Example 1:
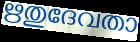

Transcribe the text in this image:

ഋതുദേവതാ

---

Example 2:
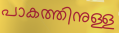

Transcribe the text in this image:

പാകത്തിനുള്ള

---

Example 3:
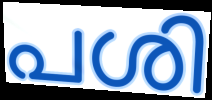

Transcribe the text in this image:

പശി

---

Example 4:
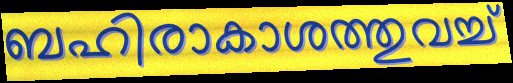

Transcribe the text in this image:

ബഹിരാകാശത്തുവച്ച്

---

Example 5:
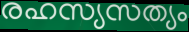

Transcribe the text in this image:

രഹസ്യസത്യം